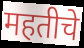
महतीचे